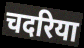
चदरिया